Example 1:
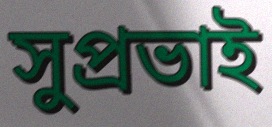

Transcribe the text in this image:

সুপ্রভাই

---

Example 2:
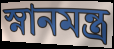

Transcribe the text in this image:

স্নানমন্ত্র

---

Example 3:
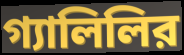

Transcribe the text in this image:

গ্যালিলির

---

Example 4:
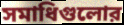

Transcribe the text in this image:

সমাধিগুলোর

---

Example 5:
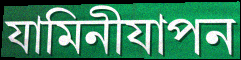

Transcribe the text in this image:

যামিনীযাপন